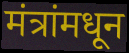
मंत्रांमधून